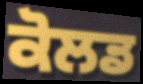
ਕੋਲਡ